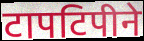
टापटिपीने